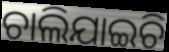
ଚାଲିଯାଇଚି